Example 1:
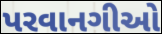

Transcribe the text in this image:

પરવાનગીઓ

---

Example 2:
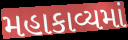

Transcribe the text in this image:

મહાકાવ્યમાં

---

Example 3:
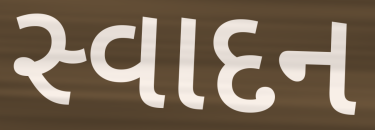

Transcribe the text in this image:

સ્વાદન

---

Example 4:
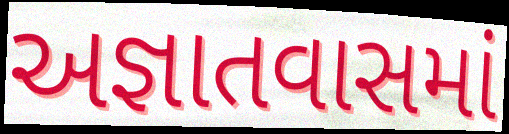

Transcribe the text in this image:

અજ્ઞાતવાસમાં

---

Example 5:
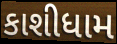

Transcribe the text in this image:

કાશીધામ